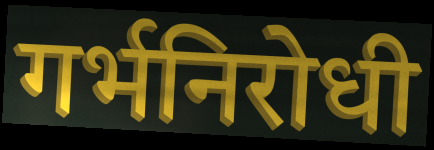
गर्भनिरोधी